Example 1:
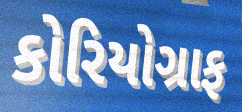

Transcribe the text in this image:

કોરિયોગ્રાફ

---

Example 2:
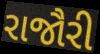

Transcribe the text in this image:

રાજૌરી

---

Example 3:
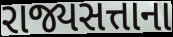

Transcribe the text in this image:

રાજ્યસત્તાના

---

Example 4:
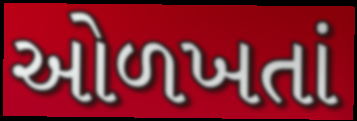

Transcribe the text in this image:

ઓળખતાં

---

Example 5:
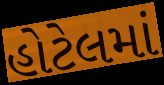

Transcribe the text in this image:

હોટેલમાં